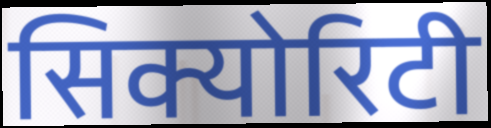
सिक्योरिटी